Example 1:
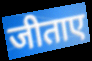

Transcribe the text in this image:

जीताए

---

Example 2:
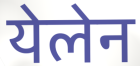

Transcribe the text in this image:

येलेन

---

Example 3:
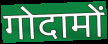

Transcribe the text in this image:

गोदामों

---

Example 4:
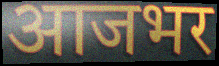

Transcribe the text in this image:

आजभर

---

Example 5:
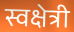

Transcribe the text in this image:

स्वक्षेत्री